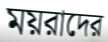
ময়রাদের